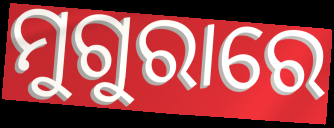
ମୁଗୁରାରେ